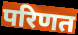
परिणत